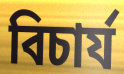
বিচাৰ্য